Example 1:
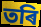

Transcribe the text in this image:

তৰি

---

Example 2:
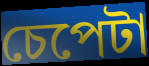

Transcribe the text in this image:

চেপেটা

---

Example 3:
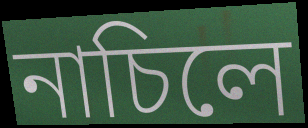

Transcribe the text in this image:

নাচিলে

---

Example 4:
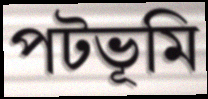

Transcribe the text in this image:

পটভূমি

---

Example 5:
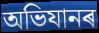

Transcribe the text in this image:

অভিযানৰ